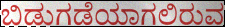
ಬಿಡುಗಡೆಯಾಗಲಿರುವ